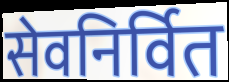
सेवनिर्वित